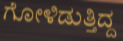
ಗೋಳಿಡುತ್ತಿದ್ದ